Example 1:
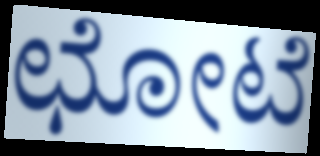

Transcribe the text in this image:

ಛೋಟೆ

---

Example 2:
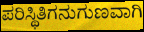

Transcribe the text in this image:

ಪರಿಸ್ಥಿತಿಗನುಗುಣವಾಗಿ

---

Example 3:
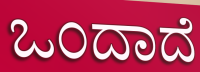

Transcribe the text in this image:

ಒಂದಾದೆ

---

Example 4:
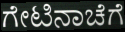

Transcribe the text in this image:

ಗೇಟಿನಾಚೆಗೆ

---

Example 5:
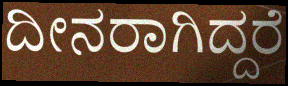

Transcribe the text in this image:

ದೀನರಾಗಿದ್ದರೆ